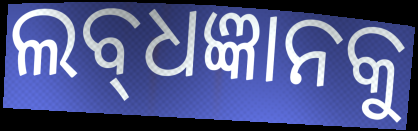
ଲବ୍‌ଧଜ୍ଞାନକୁ